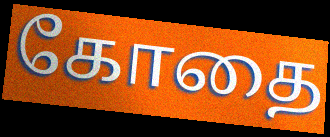
கோதை